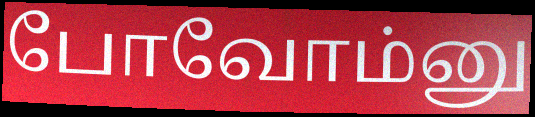
போவோம்னு